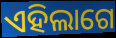
ଏହିଲାଗେ